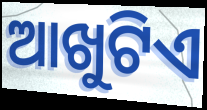
ଆଖୁଟିଏ